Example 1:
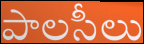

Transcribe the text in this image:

పాలసీలు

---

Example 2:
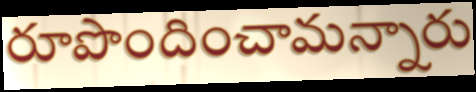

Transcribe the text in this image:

రూపొందించామన్నారు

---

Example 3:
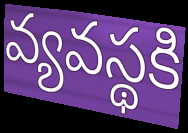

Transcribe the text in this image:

వ్యవస్థకి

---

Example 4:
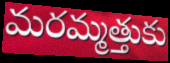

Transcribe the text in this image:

మరమ్మత్తుకు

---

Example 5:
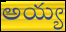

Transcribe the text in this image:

అయ్య